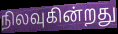
நிலவுகின்றது